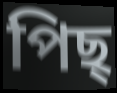
পিছ্